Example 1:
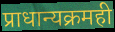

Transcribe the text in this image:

प्राधान्यक्रमही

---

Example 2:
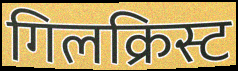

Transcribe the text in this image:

गिलक्रिस्‍ट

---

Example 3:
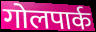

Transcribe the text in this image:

गोलपार्क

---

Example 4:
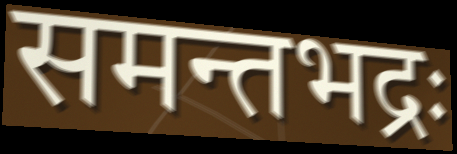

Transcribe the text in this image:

समन्तभद्रः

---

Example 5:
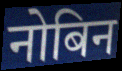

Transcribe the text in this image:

नोबिन